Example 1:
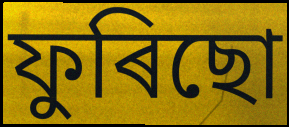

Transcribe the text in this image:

ফুৰিছো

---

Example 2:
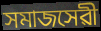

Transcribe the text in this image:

সমাজসেৱী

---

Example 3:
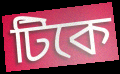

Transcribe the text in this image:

টিকে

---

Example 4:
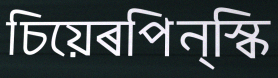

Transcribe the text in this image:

চিয়েৰপিন্‌স্কি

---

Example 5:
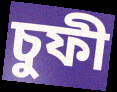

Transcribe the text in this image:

চুফী